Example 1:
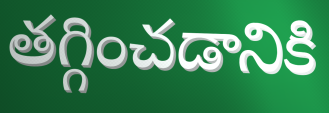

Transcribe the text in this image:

తగ్గించడానికి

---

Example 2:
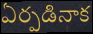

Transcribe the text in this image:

ఏర్పడినాక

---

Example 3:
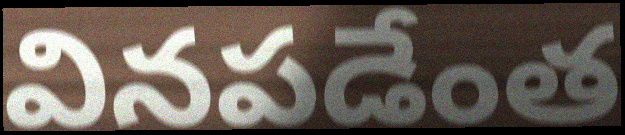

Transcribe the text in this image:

వినపడేంత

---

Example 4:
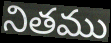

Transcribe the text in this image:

నితము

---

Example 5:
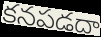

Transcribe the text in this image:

కనపడదా